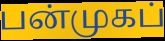
பன்முகப்